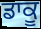
ਡਾਕੂ